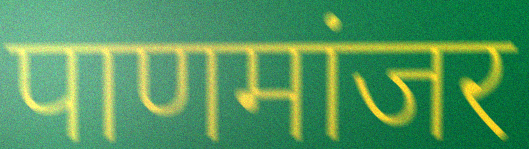
पाणमांजर